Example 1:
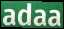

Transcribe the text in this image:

adaa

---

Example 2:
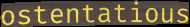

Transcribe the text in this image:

ostentatious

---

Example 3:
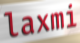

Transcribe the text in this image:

laxmi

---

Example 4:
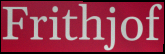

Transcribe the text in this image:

Frithjof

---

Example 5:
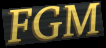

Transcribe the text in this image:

FGM